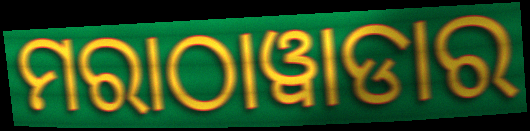
ମରାଠାୱାଡାର